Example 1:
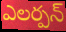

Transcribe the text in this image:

ఎలర్పన్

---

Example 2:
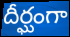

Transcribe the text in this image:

దీర్ఘంగా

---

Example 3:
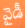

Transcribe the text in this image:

వైడీ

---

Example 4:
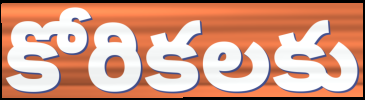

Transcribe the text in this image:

కోరికలకు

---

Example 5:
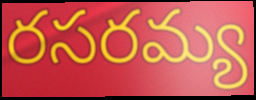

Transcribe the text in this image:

రసరమ్య